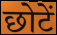
छोटें